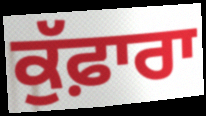
ਕੁੱਫ਼ਾਰਾ